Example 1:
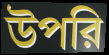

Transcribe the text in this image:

উপরি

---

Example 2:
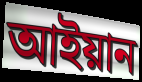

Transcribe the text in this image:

আইয়ান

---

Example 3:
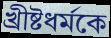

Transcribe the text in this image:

খ্রীষ্টধর্মকে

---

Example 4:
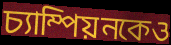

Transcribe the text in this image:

চ্যাম্পিয়নকেও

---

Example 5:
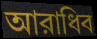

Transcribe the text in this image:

আরাধিব